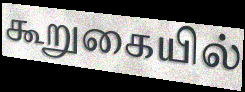
கூறுகையில்